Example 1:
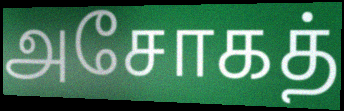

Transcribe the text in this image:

அசோகத்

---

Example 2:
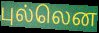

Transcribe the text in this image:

புல்லென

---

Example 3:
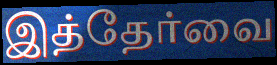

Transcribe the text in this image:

இத்தேர்வை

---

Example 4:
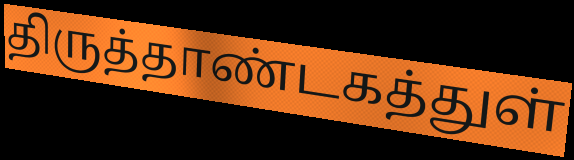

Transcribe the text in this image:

திருத்தாண்டகத்துள்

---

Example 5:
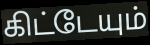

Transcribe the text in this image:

கிட்டேயும்